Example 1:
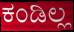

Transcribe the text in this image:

ಕಂಡಿಲ್ಲ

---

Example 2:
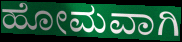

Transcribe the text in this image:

ಹೋಮವಾಗಿ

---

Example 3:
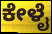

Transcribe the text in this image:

ಕೇಳೈ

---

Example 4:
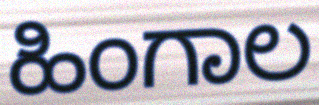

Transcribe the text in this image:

ಹಿಂಗಾಲ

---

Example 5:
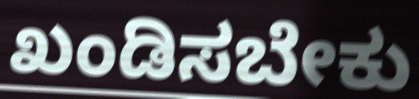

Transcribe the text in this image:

ಖಂಡಿಸಬೇಕು